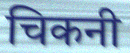
चिकनी